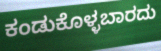
ಕಂಡುಕೊಳ್ಳಬಾರದು